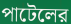
পাটেলের